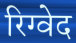
रिग्वेद